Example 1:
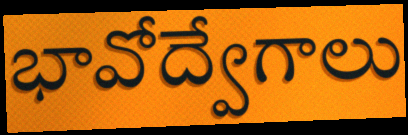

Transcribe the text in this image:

భావోద్వేగాలు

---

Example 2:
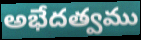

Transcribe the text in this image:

అభేదత్వము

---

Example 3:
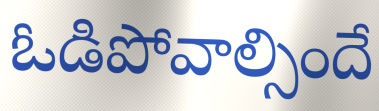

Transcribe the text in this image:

ఓడిపోవాల్సిందే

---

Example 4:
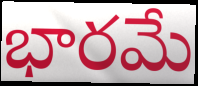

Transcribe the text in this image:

భారమే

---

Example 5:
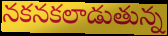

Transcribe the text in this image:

నకనకలాడుతున్న